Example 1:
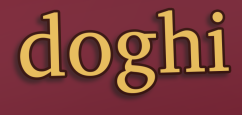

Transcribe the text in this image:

doghi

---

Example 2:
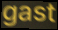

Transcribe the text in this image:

gast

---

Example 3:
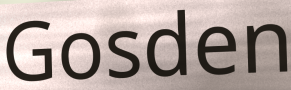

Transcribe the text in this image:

Gosden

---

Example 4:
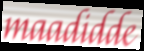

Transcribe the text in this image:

maadidde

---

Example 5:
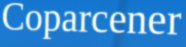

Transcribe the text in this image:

Coparcener